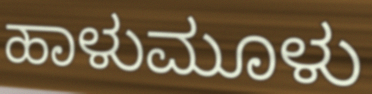
ಹಾಳುಮೂಳು